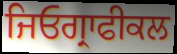
ਜਿਓਗ੍ਰਾਫੀਕਲ